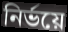
নিৰ্ভয়ে